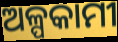
ଅଳ୍ପକାମୀ